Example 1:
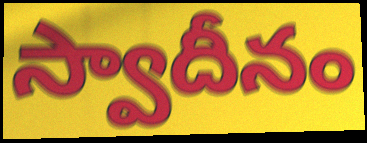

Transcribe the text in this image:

స్వాదీనం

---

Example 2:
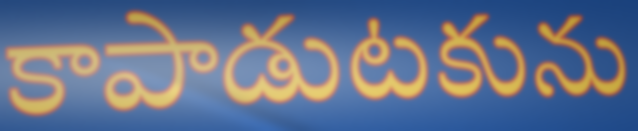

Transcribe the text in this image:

కాపాడుటకును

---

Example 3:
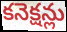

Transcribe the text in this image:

కనెక్షన్లు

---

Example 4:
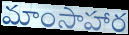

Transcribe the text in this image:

మాంసాహార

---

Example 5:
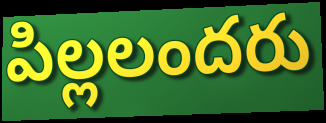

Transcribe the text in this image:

పిల్లలందరు